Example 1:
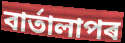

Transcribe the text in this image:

বাৰ্তালাপৰ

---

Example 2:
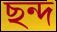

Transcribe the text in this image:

ছন্দ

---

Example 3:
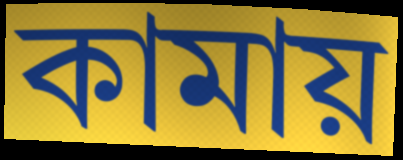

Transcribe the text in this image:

কামায়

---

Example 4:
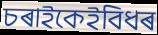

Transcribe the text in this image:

চৰাইকেইবিধৰ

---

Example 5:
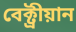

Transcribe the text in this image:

বেক্ট্ৰীয়ান